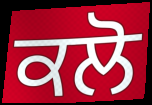
ਕਲੋ